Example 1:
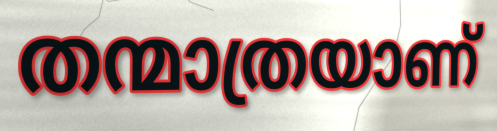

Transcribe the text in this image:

തന്മാത്രയാണ്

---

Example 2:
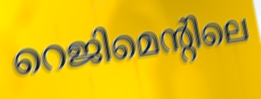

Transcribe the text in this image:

റെജിമെന്റിലെ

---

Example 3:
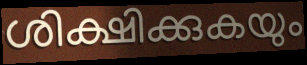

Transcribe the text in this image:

ശിക്ഷിക്കുകയും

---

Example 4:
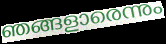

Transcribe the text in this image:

ഞങ്ങളാരെന്നും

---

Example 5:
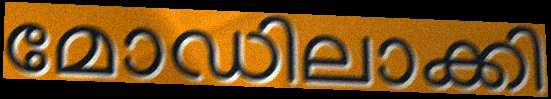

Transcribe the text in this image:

മോഡിലാക്കി